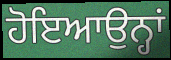
ਹੋਇਆਉਨ੍ਹਾਂ